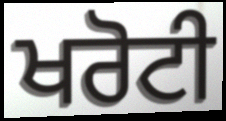
ਖਰੋਟੀ